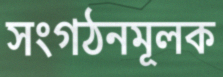
সংগঠনমূলক